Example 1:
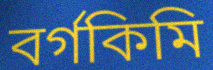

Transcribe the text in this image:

বর্গকিমি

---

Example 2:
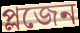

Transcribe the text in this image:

প্লজেন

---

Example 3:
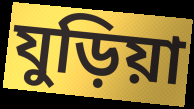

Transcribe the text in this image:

যুড়িয়া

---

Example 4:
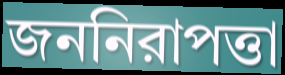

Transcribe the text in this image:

জননিরাপত্তা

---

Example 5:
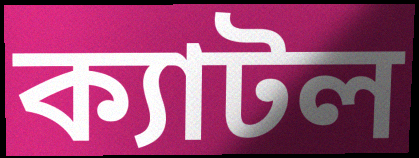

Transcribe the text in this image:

ক্যাটল